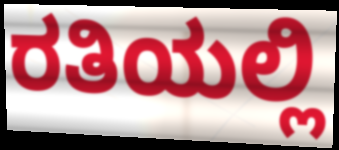
ರತಿಯಲ್ಲಿ